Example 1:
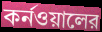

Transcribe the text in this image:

কর্নওয়ালের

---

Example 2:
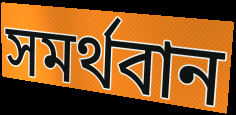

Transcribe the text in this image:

সমর্থবান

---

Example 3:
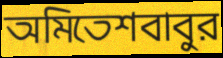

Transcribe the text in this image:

অমিতেশবাবুর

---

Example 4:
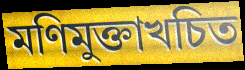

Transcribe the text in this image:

মণিমুক্তাখচিত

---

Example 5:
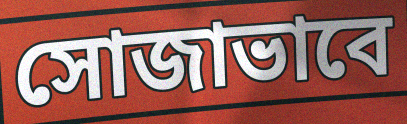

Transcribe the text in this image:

সোজাভাবে